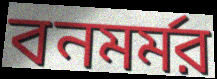
বনমর্মর